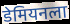
डेमियनला